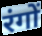
रंगों